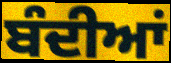
ਬੰਦੀਆਂ